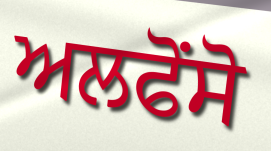
ਅਲਫੋਂਸੋ